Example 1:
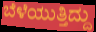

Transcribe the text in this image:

ಬೆಳೆಯುತ್ತಿದ್ದು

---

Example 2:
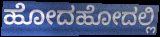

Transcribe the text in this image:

ಹೋದಹೋದಲ್ಲಿ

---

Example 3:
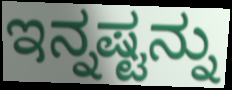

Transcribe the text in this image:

ಇನ್ನಷ್ಟನ್ನು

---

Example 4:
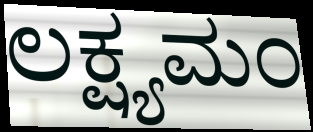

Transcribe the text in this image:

ಲಕ್ಷ್ಯಮಂ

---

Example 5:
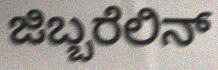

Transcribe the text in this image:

ಜಿಬ್ಬರೆಲಿನ್